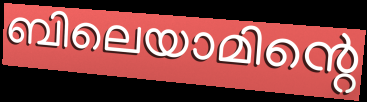
ബിലെയാമിന്റെ